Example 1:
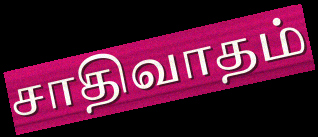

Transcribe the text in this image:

சாதிவாதம்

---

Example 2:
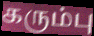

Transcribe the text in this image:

கரும்பு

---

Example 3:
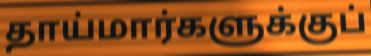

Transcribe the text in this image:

தாய்மார்களுக்குப்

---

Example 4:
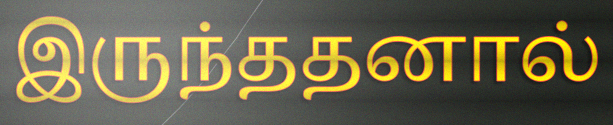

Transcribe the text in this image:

இருந்ததனால்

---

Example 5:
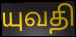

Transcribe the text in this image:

யுவதி